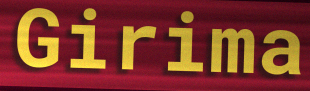
Girima